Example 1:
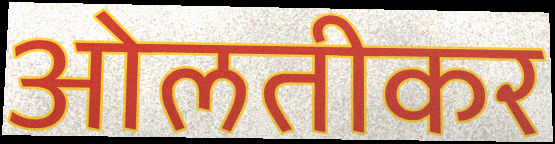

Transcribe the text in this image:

ओलतीकर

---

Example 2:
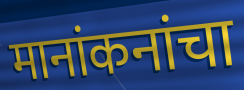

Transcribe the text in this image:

मानांकनांचा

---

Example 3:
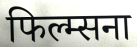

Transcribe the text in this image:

फिल्म्सना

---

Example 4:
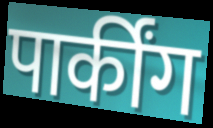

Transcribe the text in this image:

पार्कींग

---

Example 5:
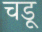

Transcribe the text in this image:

चडू